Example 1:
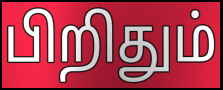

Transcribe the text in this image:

பிறிதும்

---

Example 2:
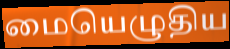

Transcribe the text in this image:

மையெழுதிய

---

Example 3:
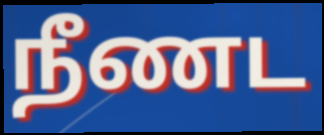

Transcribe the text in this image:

நீணட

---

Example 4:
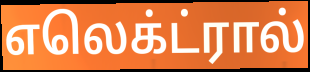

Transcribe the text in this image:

எலெக்ட்ரால்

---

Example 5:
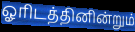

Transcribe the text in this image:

ஓரிடத்தினின்றும்